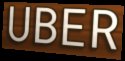
UBER